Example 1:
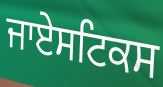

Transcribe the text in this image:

ਜਾਏਸਟਿਕਸ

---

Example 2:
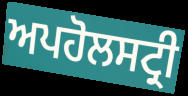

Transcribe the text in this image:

ਅਪਹੋਲਸਟ੍ਰੀ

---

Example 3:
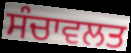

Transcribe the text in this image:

ਸੰਚਾਵਲਤ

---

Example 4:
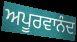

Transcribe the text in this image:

ਅਪੂਰਵਾਨੰਦ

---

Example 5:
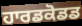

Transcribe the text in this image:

ਹਾਰਡਕੋਡਡ